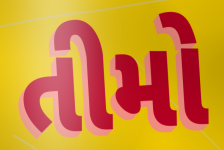
તીમો